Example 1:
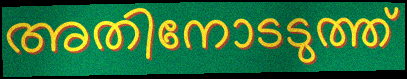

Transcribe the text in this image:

അതിനോടടുത്ത്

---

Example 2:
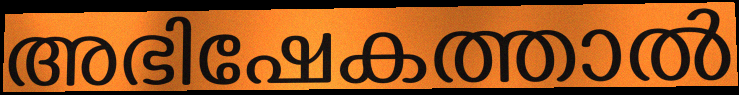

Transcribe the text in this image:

അഭിഷേകത്താൽ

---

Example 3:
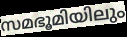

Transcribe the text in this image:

സമഭൂമിയിലും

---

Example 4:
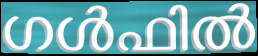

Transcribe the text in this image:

ഗൾഫിൽ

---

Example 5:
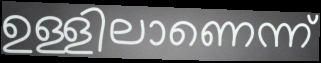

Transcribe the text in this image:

ഉള്ളിലാണെന്ന്